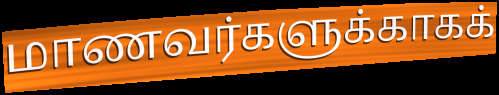
மாணவர்களுக்காகக்